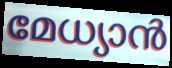
മേധ്യാൻ